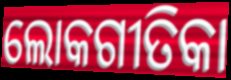
ଲୋକଗୀତିକା